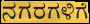
ನಗರಗಳಿಗೆ